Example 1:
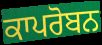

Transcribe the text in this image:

ਕਾਪਰੋਬਨ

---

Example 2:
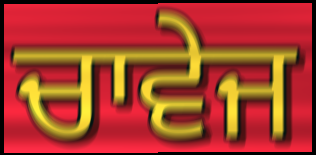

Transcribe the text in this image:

ਚਾਵੇਜ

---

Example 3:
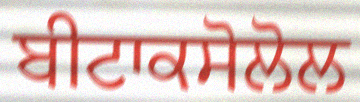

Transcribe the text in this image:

ਬੀਟਾਕਸੋਲੋਲ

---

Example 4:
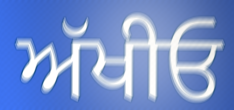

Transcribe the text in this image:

ਅੱਖੀਓ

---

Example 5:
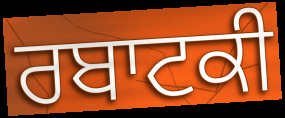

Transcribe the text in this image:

ਰਬਾਟਕੀ